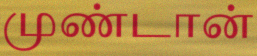
முண்டான்